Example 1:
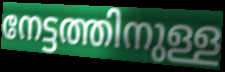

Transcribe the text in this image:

നേട്ടത്തിനുള്ള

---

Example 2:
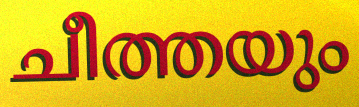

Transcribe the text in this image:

ചീത്തയും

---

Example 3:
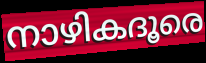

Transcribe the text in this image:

നാഴികദൂരെ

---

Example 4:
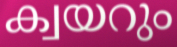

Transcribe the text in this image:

ക്വയറും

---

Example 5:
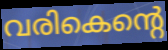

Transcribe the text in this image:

വരികെന്റെ